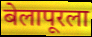
बेलापूरला